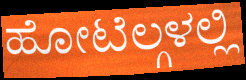
ಹೋಟೆಲ್ಗಳಲ್ಲಿ